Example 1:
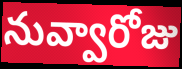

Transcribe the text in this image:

నువ్వారోజు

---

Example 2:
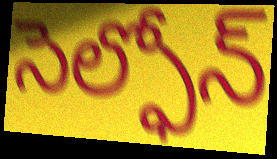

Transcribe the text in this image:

సెల్ఫోన్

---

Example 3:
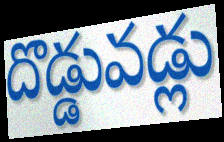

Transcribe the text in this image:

దొడ్డువడ్లు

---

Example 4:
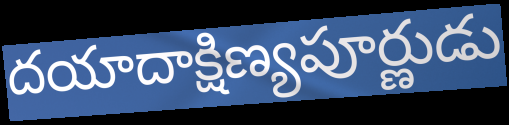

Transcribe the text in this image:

దయాదాక్షిణ్యపూర్ణుడు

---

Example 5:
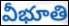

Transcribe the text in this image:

వీభూతి